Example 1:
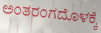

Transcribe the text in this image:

ಅಂತರಂಗದೊಳಕ್ಕೆ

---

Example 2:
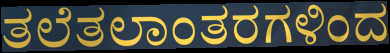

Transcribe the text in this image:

ತಲೆತಲಾಂತರಗಳಿಂದ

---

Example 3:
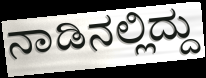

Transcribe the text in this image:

ನಾಡಿನಲ್ಲಿದ್ದು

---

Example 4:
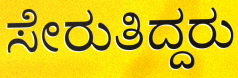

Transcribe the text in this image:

ಸೇರುತಿದ್ದರು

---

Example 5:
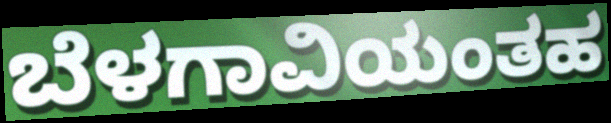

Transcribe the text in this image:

ಬೆಳಗಾವಿಯಂತಹ